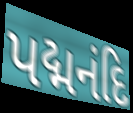
પદ્મનંદિ